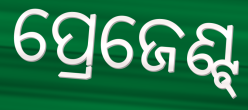
ପ୍ରେଜେଣ୍ଟ୍